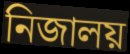
নিজালয়